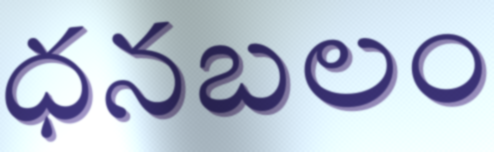
ధనబలం